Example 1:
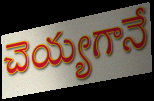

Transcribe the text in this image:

చెయ్యగానే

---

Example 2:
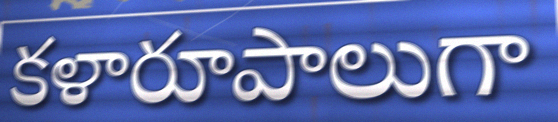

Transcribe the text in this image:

కళారూపాలుగా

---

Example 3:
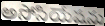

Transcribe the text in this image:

అసోసియేషను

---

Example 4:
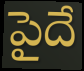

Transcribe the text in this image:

పైదే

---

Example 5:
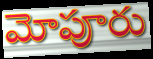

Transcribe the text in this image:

మోపూరు